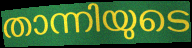
താന്നിയുടെ